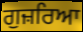
ਗੁਜ਼ਰਿਆ